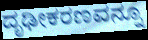
ದೃಢೀಕರಣವನ್ನೂ